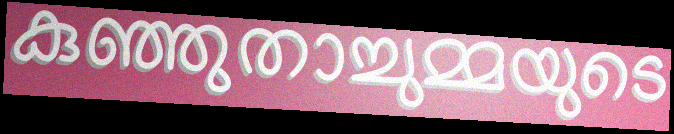
കുഞ്ഞുതാച്ചുമ്മയുടെ